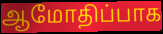
ஆமோதிப்பாக